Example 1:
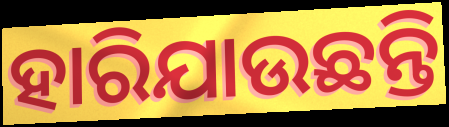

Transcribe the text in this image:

ହାରିଯାଉଛନ୍ତି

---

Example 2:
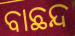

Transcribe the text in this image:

ବାଛନ୍ଦ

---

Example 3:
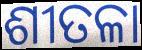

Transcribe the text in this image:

ଶୀତଳା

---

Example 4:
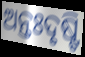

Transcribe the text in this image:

ଅନ୍ତଃଦୃଷ୍ଟି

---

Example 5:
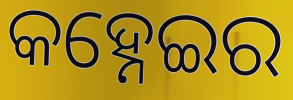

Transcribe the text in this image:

କହ୍ନେଇର